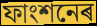
ফাংশনেৰ